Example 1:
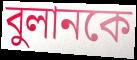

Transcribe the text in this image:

বুলানকে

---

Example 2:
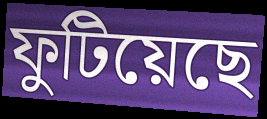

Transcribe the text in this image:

ফুটিয়েছে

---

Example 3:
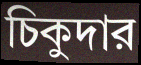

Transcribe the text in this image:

চিকুদার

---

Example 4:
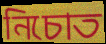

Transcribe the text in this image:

নিচোত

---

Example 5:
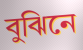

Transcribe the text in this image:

বুঝিনে